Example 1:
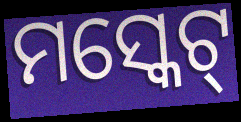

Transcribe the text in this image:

ମସ୍କେଟ୍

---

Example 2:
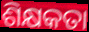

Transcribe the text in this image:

ଶିକ୍ଷକତା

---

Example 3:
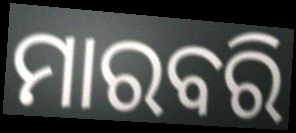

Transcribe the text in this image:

ମାରବରି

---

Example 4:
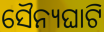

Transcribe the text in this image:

ସୈନ୍ୟଘାଟି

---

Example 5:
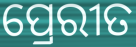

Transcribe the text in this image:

ପ୍ରେରୀତ